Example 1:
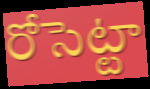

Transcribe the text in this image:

రోసెట్టా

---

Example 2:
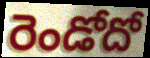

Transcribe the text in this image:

రెండోదో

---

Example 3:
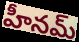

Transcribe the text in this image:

హీనమ్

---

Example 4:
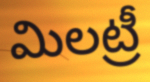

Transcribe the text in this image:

మిలట్రీ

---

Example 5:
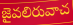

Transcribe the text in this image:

జైవలిరువాచ